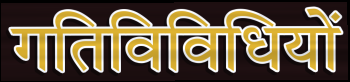
गतिविविधियों